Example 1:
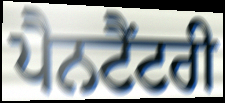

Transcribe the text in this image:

ਪੈਨਟੈਂਟਰੀ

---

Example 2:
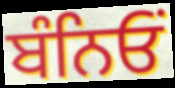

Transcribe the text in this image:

ਬੰਨਿਓਂ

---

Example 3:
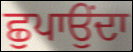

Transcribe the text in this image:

ਛੁਪਾਉਂਦਾ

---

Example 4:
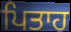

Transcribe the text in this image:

ਪਿਤਾਹ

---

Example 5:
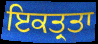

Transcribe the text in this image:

ਇਕਤ੍ਰਤਾ